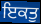
ਇਕਤੁ